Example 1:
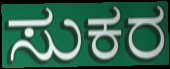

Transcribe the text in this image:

ಸುಕರ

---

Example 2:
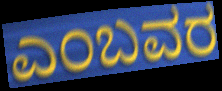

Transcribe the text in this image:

ಎಂಬವರ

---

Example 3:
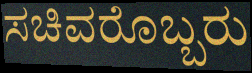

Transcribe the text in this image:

ಸಚಿವರೊಬ್ಬರು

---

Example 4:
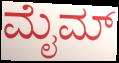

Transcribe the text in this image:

ಮೈಮ್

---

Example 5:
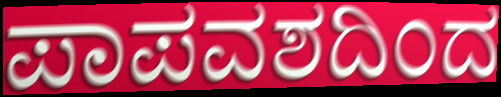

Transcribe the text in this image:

ಪಾಪವಶದಿಂದ